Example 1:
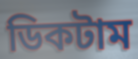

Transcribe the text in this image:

ডিকটাম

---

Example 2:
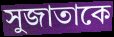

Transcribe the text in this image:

সুজাতাকে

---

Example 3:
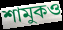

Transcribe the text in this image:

শামুকও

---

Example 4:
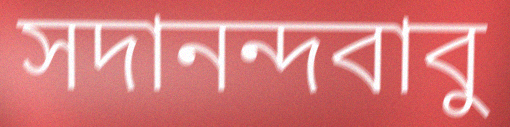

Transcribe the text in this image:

সদানন্দবাবু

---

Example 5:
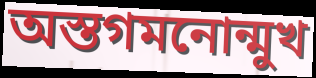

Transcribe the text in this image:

অস্তগমনোন্মুখ